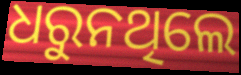
ଧରୁନଥିଲେ